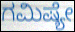
ಗಮಿಷ್ಯೇ